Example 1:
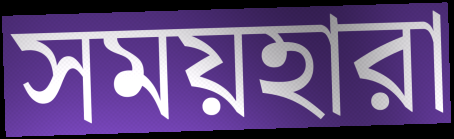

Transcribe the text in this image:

সময়হারা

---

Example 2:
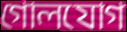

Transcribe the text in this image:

গোলযোগ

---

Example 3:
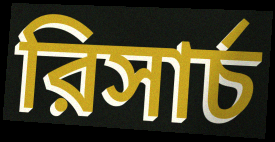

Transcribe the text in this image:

রিসার্চ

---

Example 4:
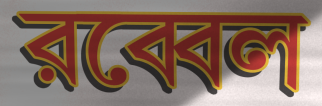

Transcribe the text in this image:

রব্বেল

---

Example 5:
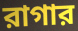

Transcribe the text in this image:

রাগার